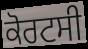
ਕੋਰਟਸੀ